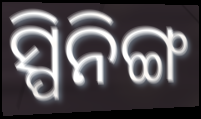
ସ୍ପିନିଙ୍ଗ